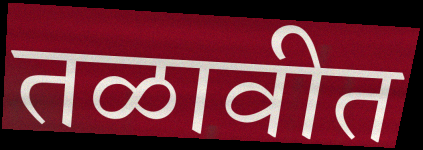
तळावीत